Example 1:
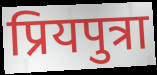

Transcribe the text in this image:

प्रियपुत्रा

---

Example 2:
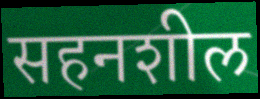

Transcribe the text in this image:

सहनशील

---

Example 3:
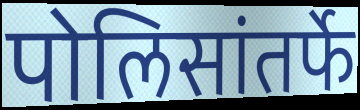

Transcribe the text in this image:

पोलिसांतर्फे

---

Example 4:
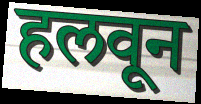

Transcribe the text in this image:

हलवून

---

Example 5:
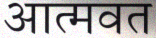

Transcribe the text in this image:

आत्मवत